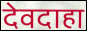
देवदाहा